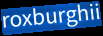
roxburghii